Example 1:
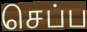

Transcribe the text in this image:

செப்ப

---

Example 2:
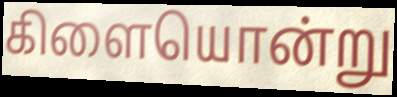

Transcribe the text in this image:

கிளையொன்று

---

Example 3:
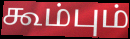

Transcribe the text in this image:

கூம்பும்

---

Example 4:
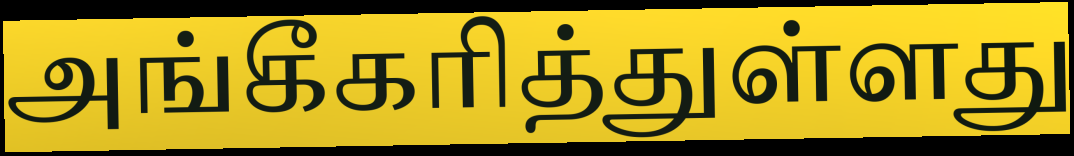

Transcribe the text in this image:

அங்கீகரித்துள்ளது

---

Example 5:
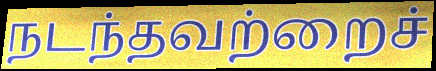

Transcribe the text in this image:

நடந்தவற்றைச்